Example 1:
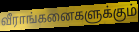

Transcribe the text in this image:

வீராங்கனைகளுக்கும்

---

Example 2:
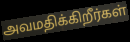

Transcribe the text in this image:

அவமதிக்கிறீர்கள்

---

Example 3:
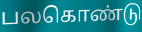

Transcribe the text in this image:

பலகொண்டு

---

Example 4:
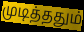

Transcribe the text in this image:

முடித்ததும்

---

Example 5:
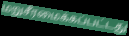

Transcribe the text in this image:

மறுசீரமைக்கப்பட்டது